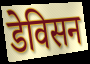
डेविसन